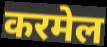
करमेल